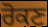
ਰੋਕਣ